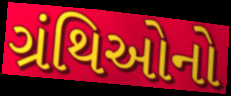
ગ્રંથિઓનો